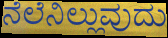
ನೆಲೆನಿಲ್ಲುವುದು